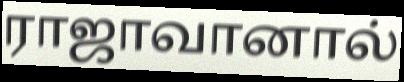
ராஜாவானால்